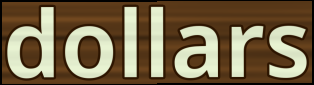
dollars